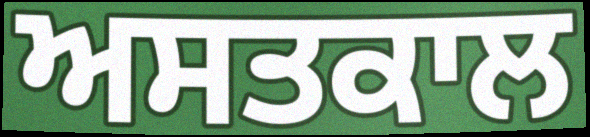
ਅਸਤਕਾਲ